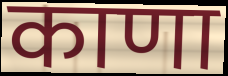
काणा